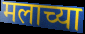
मलाच्या